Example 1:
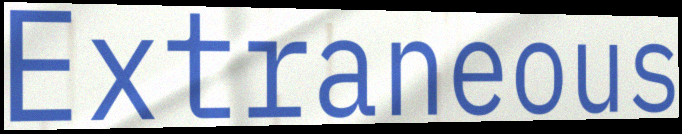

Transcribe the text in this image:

Extraneous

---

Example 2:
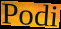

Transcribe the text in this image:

Podi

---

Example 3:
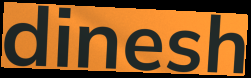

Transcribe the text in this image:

dinesh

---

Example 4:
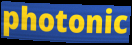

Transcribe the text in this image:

photonic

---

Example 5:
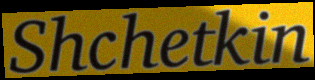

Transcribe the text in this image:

Shchetkin